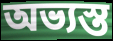
অভ্যস্ত